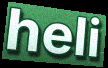
heli